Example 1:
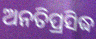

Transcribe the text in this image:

ଅନତିପ୍ରସିଦ୍ଧ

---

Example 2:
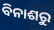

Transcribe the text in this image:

ବିନାଶରୁ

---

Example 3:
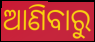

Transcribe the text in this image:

ଆଣିବାରୁ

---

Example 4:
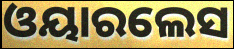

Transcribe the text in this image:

ଓୟାରଲେସ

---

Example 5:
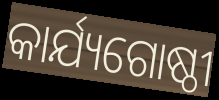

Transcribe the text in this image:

କାର୍ଯ୍ୟଗୋଷ୍ଠୀ